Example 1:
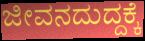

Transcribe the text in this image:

ಜೀವನದುದ್ದಕ್ಕೆ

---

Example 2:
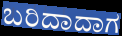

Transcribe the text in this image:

ಬರಿದಾದಾಗ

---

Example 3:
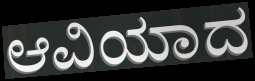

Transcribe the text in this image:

ಆವಿಯಾದ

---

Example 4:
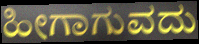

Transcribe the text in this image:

ಹೀಗಾಗುವದು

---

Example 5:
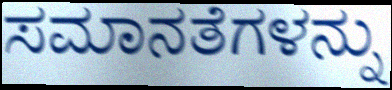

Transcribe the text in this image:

ಸಮಾನತೆಗಳನ್ನು